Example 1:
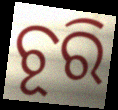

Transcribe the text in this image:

ଚୂରି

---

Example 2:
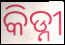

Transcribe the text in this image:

କିଡ୍ନୀ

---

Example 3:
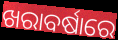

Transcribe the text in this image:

ଖରାବର୍ଷାରେ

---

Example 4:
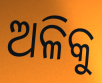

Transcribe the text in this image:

ଅଳିକୁ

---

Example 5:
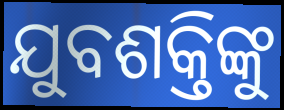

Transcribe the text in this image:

ଯୁବଶକ୍ତିଙ୍କୁ